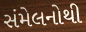
સંમેલનોથી